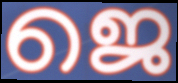
ജെ